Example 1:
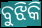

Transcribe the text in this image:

ବୁଝିକି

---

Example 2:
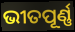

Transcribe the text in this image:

ଭୀତପୂର୍ଣ୍ଣ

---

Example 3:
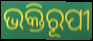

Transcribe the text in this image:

ଭକ୍ତିରୂପୀ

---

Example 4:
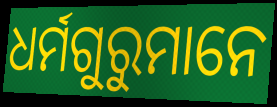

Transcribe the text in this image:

ଧର୍ମଗୁରୁମାନେ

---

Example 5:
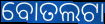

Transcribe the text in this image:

ବୋତଲଟା